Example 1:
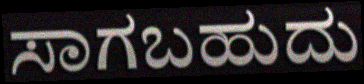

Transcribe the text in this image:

ಸಾಗಬಹುದು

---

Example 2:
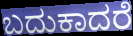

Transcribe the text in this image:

ಬದುಕಾದರೆ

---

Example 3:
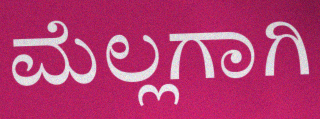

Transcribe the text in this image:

ಮೆಲ್ಲಗಾಗಿ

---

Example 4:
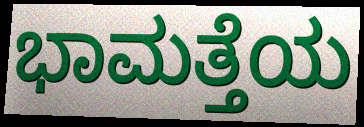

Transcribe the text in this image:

ಭಾಮತ್ತೆಯ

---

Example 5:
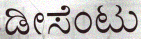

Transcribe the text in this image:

ಡೀಸೆಂಟು